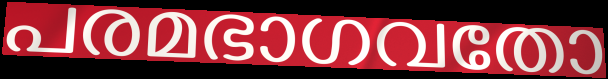
പരമഭാഗവതോ